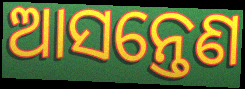
ଆସନ୍ତେଣ